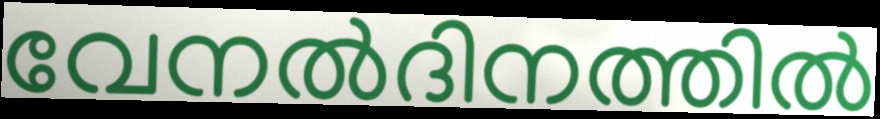
വേനൽദിനത്തിൽ